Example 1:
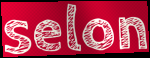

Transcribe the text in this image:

selon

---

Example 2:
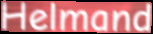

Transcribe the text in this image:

Helmand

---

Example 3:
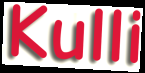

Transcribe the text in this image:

Kulli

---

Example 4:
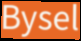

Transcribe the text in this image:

Bysel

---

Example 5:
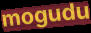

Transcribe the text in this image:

mogudu